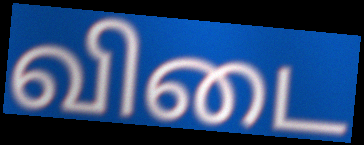
விடை